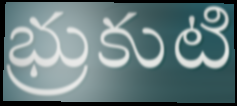
భ్రుకుటి